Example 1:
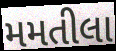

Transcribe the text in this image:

મમતીલા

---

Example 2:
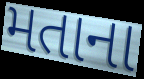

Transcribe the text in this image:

મતાના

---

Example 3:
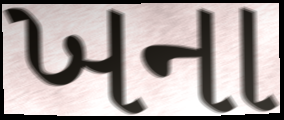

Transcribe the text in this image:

ખના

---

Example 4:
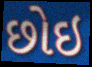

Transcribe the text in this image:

છોઇ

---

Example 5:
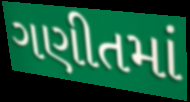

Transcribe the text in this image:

ગણીતમાં